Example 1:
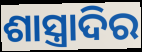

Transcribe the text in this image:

ଶାସ୍ତ୍ରାଦିର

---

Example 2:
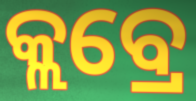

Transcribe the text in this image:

କ୍ଲବ୍ରେ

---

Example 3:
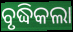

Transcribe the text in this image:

ବୃଦ୍ଧିକଲା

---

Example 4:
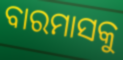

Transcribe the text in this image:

ବାରମାସକୁ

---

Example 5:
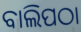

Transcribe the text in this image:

ବାଲିପଠା